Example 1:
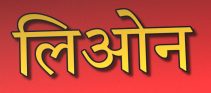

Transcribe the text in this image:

लिओन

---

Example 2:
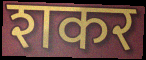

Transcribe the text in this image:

शकर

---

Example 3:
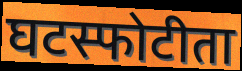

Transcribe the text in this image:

घटस्फोटीता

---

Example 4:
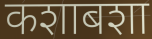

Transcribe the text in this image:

कशाबशा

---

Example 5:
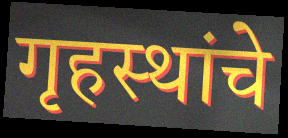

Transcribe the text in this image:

गृहस्थांचे